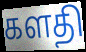
களதி